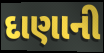
દાણાની